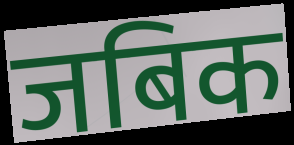
जबिक